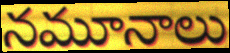
నమూనాలు